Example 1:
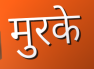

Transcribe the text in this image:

मुरके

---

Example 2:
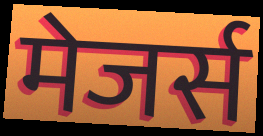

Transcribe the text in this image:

मेजर्स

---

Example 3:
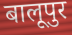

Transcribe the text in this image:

बालूपुर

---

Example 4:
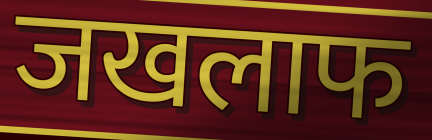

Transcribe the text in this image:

जखलाफ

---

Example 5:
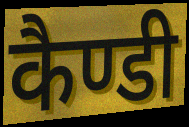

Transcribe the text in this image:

कैण्डी